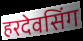
हरदेवसिंग